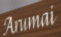
Arumai